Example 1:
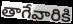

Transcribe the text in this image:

తాగేవారికి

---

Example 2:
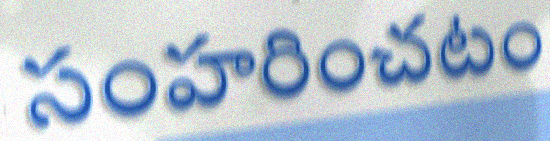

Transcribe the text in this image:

సంహరించటం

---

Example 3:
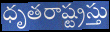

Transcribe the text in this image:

ధృతరాష్ట్రస్తు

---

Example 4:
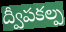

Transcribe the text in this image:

ద్వీపకల్ప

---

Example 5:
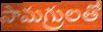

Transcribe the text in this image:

సామగ్రులతో